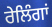
ਰੇਲਿੰਗਾਂ